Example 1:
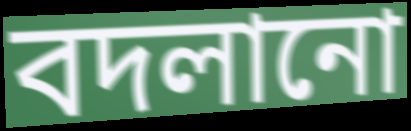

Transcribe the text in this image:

বদলানো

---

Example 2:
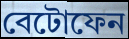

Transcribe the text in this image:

বেটোফেন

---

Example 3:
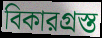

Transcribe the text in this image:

বিকারগ্রস্ত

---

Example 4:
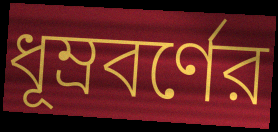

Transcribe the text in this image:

ধূম্রবর্ণের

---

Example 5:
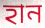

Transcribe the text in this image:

হান